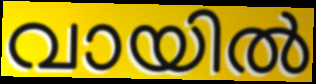
വായിൽ